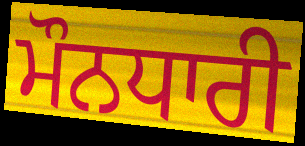
ਮੌਨਧਾਰੀ